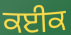
ਕਈਕ